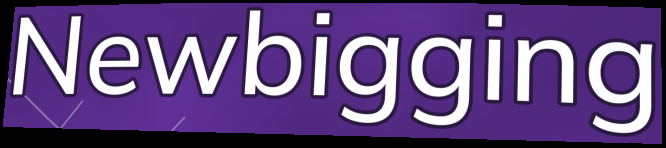
Newbigging